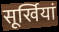
सूर्खियां